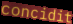
concidit